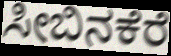
ಸೀಬಿನಕೆರೆ